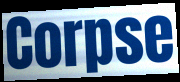
Corpse